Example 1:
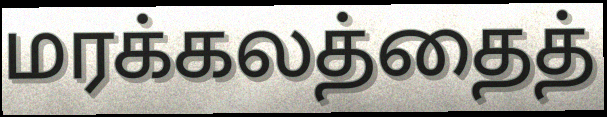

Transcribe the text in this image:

மரக்கலத்தைத்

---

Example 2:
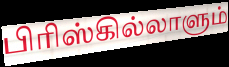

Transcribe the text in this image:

பிரிஸ்கில்லாளும்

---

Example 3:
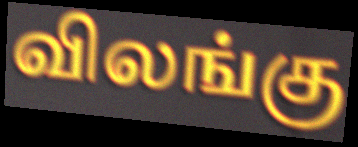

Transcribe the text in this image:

விலங்கு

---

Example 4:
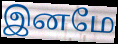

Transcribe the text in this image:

இனமே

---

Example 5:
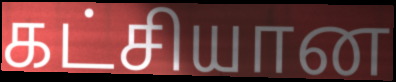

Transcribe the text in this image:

கட்சியான